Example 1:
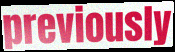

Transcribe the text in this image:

previously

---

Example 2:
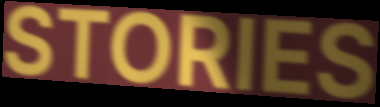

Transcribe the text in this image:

STORIES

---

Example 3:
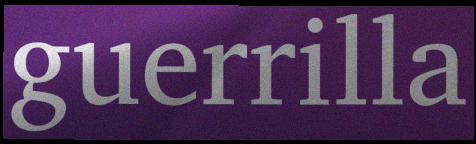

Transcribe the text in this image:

guerrilla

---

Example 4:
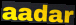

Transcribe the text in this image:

aadar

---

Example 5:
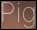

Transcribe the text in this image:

Pig